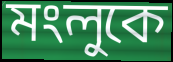
মংলুকে